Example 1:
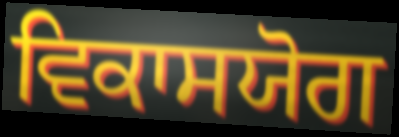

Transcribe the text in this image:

ਵਿਕਾਸਯੋਗ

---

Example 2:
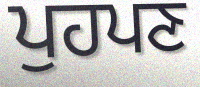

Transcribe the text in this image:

ਪੁਹਪਣ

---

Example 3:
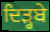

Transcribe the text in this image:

ਦਿੜ੍ਹਬੇ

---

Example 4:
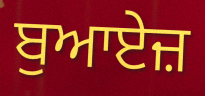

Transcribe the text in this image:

ਬੁਆਏਜ਼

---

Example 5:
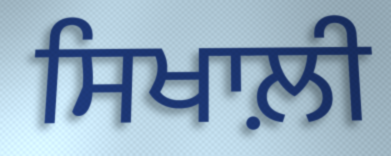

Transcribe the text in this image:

ਸਿਖਾਲ਼ੀ